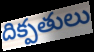
దిక్పతులు